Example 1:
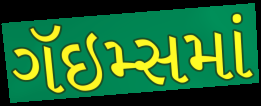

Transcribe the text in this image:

ગૅઇમ્સમાં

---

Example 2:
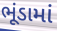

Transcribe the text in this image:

ભૂંડામાં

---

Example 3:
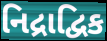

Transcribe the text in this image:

નિદ્રાદ્વિક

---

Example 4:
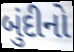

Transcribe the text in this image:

બુંદીનો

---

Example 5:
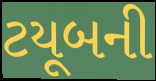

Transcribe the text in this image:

ટયૂબની